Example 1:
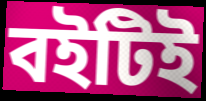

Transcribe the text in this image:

বইটিই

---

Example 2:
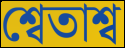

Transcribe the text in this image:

শ্বেতাশ্ব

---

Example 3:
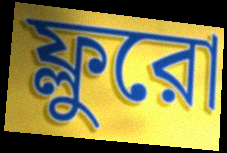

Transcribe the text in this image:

ফ্লুরো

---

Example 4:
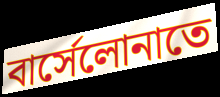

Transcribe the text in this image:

বার্সেলোনাতে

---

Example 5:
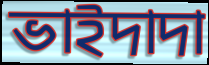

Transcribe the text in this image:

ভাইদাদা